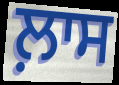
ਲ਼ਾਸ